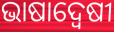
ଭାଷାଦ୍ଵେଷୀ